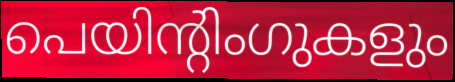
പെയിന്റിംഗുകളും